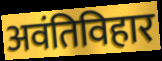
अवंतिविहार